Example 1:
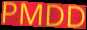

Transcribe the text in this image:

PMDD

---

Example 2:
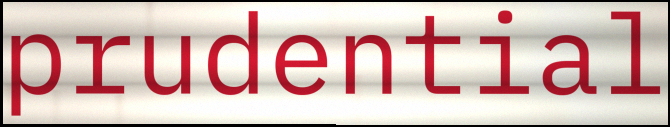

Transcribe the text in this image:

prudential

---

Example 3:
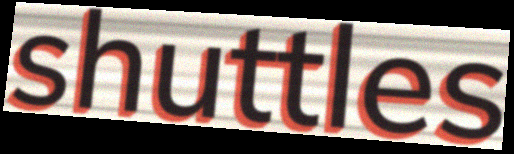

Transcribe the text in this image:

shuttles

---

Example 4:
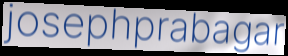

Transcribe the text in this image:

josephprabagar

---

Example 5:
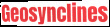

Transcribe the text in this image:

Geosynclines